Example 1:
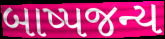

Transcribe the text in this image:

બાષ્પજન્ય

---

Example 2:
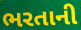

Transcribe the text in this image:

ભરતાની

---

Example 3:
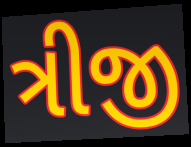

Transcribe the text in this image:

ત્રીજી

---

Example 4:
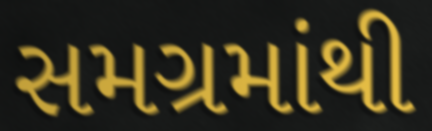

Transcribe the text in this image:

સમગ્રમાંથી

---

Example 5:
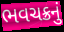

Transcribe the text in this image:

ભવચક્રનું